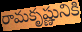
రామకృష్ణునికి